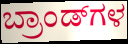
ಬ್ರಾಂಡ್‌ಗಳ